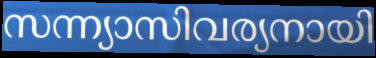
സന്ന്യാസിവര്യനായി